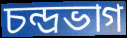
চন্দ্রভাগ